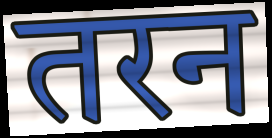
तरन